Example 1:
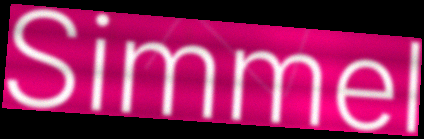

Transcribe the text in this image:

Simmel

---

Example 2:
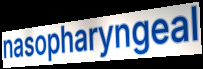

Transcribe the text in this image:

nasopharyngeal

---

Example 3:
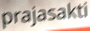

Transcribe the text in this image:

prajasakti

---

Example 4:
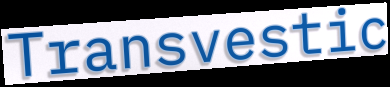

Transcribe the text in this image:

Transvestic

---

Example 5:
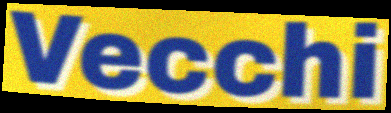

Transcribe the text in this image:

Vecchi